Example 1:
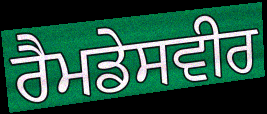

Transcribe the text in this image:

ਰੈਮਡੇਸਵੀਰ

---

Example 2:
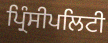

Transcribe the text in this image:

ਪ੍ਰਿੰਸੀਪਲਿਟੀ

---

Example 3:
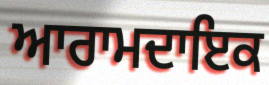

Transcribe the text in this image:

ਆਰਾਮਦਾਇਕ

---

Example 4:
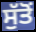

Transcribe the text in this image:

ਸੁੱਤੋਂ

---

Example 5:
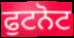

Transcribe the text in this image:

ਫੁਟਨੋਟ